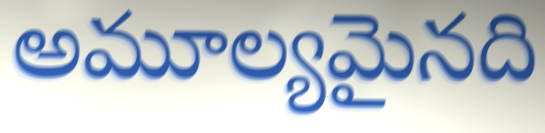
అమూల్యమైనది